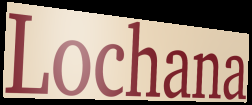
Lochana